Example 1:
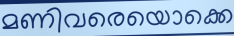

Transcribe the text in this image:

മണിവരെയൊക്കെ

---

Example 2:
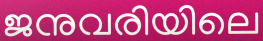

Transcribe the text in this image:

ജനുവരിയിലെ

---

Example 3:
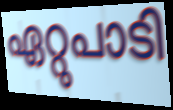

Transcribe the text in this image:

ഏറ്റുപാടി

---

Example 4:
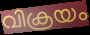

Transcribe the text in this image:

വിക്രയം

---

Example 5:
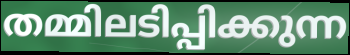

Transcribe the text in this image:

തമ്മിലടിപ്പിക്കുന്ന